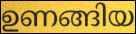
ഉണങ്ങിയ